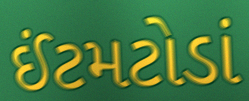
ઈંટમટોડાં